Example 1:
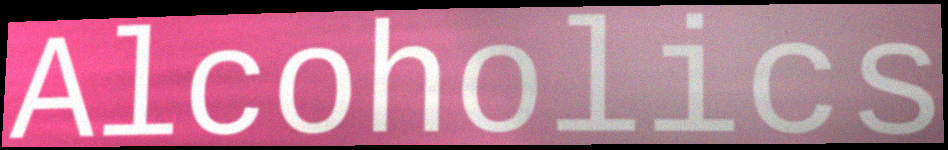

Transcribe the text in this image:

Alcoholics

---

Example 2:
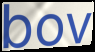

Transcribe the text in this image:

bov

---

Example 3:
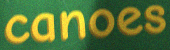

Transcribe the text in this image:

canoes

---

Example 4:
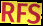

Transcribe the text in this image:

RFS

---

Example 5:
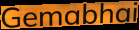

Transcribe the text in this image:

Gemabhai